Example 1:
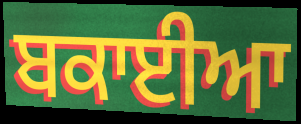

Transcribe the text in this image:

ਬਕਾਈਆ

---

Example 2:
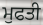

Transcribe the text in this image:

ਮੁਫਤੀ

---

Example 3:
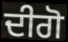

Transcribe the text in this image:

ਦੀਗੋ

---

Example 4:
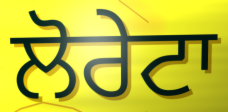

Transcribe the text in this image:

ਲੋਰੇਟਾ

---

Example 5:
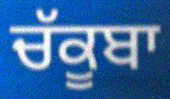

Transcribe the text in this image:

ਚੱਕੂਬਾ